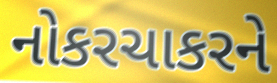
નોકરચાકરને